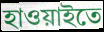
হাওয়াইতে